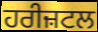
ਹਰੀਜ਼ਟਲ